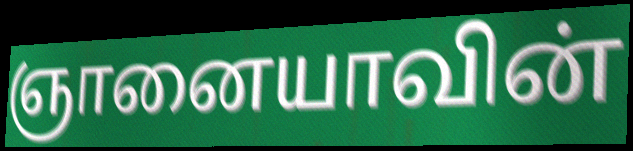
ஞானையாவின்